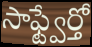
సాఫ్ట్వేర్తో